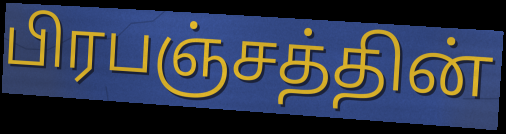
பிரபஞ்சத்தின்